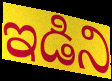
ఇడిని